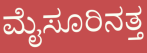
ಮೈಸೂರಿನತ್ತ